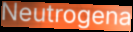
Neutrogena